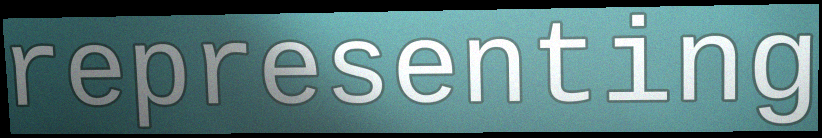
representing